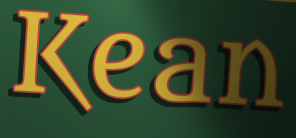
Kean